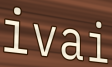
ivai